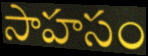
సాహసం